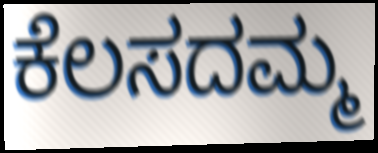
ಕೆಲಸದಮ್ಮ